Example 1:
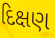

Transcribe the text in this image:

દિક્ષણ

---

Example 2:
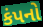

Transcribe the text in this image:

કંપનો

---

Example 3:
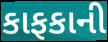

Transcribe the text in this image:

કાફકાની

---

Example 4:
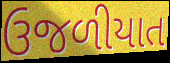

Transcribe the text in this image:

ઉજળીયાત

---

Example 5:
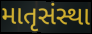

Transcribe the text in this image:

માતૃસંસ્થા